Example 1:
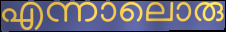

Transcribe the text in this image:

എന്നാലൊരു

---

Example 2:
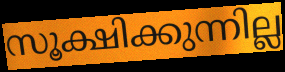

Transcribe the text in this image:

സൂക്ഷിക്കുന്നില്ല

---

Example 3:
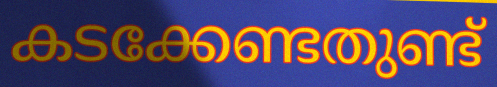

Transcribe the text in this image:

കടക്കേണ്ടതുണ്ട്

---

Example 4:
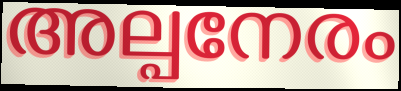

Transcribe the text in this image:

അല്പനേരം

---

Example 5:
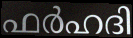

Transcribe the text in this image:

ഫർഹദി